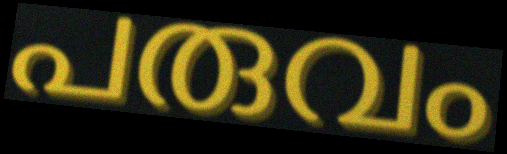
പരുവം